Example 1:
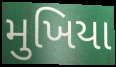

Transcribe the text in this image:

મુખિયા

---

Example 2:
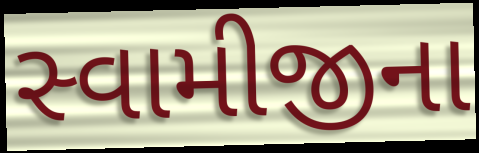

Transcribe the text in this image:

સ્વામીજીના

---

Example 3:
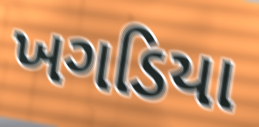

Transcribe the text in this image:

ખગડિયા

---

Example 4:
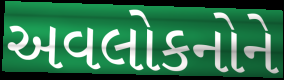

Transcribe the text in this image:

અવલોકનોને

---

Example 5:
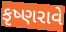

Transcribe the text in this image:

કૃષ્ણરાવે